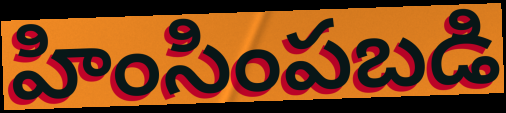
హింసింపబడి